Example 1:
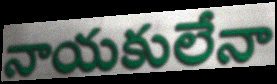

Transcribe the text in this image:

నాయకులేనా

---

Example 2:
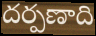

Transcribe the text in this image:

దర్పణాది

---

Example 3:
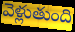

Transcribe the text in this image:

వెళ్లుతుంది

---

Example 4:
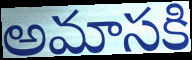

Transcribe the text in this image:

అమాసకి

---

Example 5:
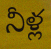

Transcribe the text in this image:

నీళ్ల